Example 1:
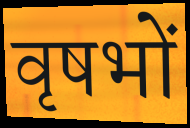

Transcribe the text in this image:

वृषभों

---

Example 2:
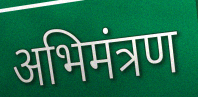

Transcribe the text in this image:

अभिमंत्रण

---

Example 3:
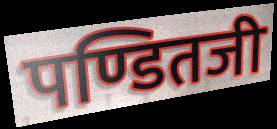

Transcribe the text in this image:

पण्डितजी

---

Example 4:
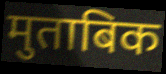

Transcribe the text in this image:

मुताबिक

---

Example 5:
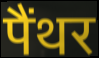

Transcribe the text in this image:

पैंथर